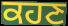
ਕਹਣ